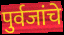
पुर्वजांचे